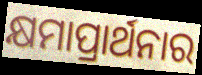
କ୍ଷମାପ୍ରାର୍ଥନାର